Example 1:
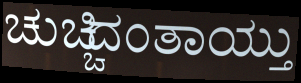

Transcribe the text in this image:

ಚುಚ್ಚಿದಂತಾಯ್ತು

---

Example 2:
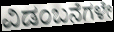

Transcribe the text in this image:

ವಿಡಂಬನೆಗಳೇ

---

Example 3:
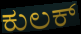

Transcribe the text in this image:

ಕುಲಕ್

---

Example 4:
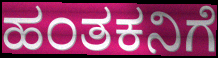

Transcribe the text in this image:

ಹಂತಕನಿಗೆ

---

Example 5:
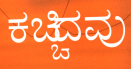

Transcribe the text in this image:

ಕಚ್ಚಿದವು